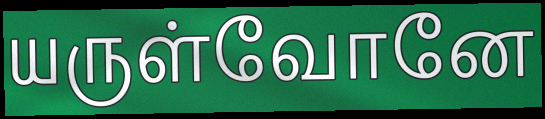
யருள்வோனே